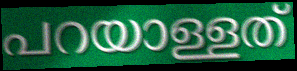
പറയാള്ളത്